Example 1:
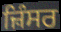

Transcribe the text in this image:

ਜ਼ਿੰਸਰ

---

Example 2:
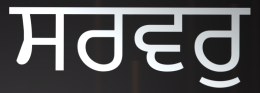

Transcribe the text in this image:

ਸਰਵਰੁ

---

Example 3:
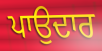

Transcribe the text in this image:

ਪਾਉਦਾਰ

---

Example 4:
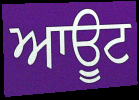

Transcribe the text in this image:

ਆਉੂਟ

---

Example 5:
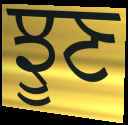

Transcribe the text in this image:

ਝੂਣ